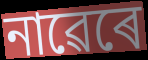
নাৱেৰে